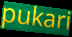
pukari